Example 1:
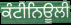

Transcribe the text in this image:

ਕੰਟੀਨਿਊਲੀ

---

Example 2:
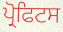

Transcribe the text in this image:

ਪ੍ਰੋਫਿਟਸ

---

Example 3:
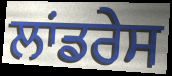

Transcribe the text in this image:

ਲਾਂਡਰੇਸ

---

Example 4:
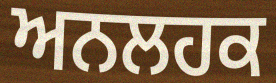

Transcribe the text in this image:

ਅਨਲਹਕ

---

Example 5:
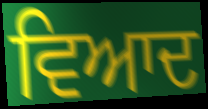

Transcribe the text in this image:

ਵਿਆਦ